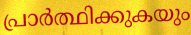
പ്രാർത്ഥിക്കുകയും